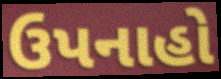
ઉપનાહો